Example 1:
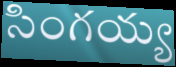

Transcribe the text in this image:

సింగయ్య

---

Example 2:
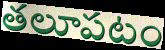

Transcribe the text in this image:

తలూపటం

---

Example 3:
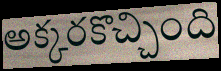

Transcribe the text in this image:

అక్కరకొచ్చింది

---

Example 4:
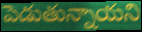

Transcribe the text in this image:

పెడుతున్నాయని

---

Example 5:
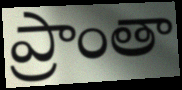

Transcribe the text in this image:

ప్రాంతా